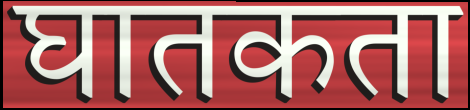
घातकता